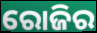
ରୋଜିର